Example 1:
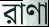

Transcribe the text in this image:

রাণা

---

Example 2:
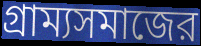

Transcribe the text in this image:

গ্রাম্যসমাজের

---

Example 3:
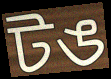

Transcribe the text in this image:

টঙ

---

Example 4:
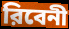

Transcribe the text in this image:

রিবেনী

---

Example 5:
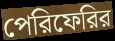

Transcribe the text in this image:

পেরিফেরির